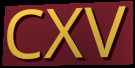
CXV